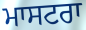
ਮਾਸਟਰਾ